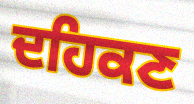
ਦਹਿਕਣ